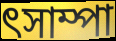
ৎসাম্পা